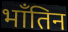
भाँतिन